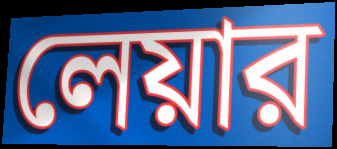
লেয়ার